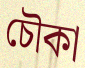
চৌকা